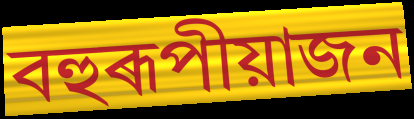
বহুৰূপীয়াজন